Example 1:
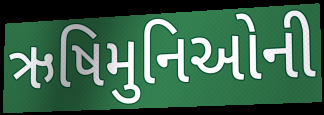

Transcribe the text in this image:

ઋષિમુનિઓની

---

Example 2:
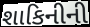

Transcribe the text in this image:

શાકિનીની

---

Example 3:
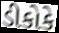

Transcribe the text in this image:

ડીકોકે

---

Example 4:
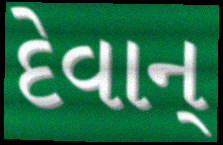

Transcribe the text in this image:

દેવાન્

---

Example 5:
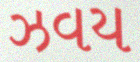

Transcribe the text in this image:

ઝવય